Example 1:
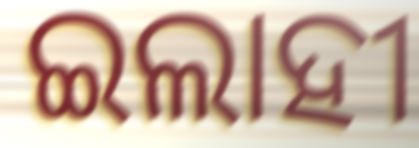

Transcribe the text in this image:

ଇଲାହୀ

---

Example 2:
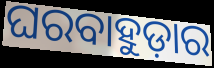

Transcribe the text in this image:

ଘରବାହୁଡ଼ାର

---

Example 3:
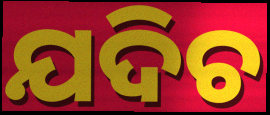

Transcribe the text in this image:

ଯଦିଚ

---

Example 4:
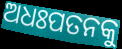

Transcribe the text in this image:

ଅଧଃପତନକୁ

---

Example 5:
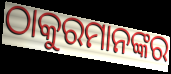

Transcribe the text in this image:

ଠାକୁରମାନଙ୍କର